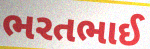
ભરતભાઈ